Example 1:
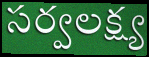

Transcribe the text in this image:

సర్వలక్ష్య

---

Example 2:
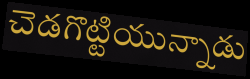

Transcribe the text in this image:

చెడగొట్టియున్నాడు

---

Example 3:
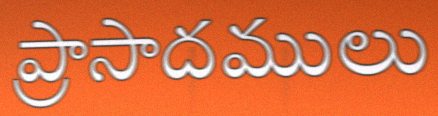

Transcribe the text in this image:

ప్రాసాదములు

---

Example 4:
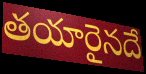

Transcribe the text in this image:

తయారైనదే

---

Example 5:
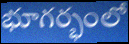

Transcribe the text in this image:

భూగర్భంలో